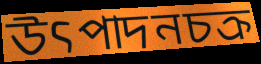
উৎপাদনচক্র